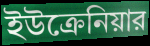
ইউক্রেনিয়ার